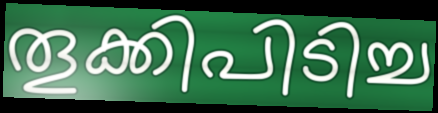
തൂക്കിപിടിച്ച